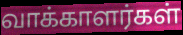
வாக்காளர்கள்